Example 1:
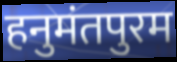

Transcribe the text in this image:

हनुमंतपुरम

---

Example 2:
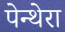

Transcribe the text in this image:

पेन्थेरा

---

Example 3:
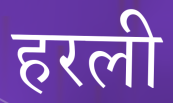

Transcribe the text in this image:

हरली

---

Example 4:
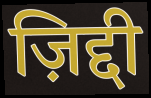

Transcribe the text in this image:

ज़िद्दी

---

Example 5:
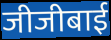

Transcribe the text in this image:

जीजीबाई